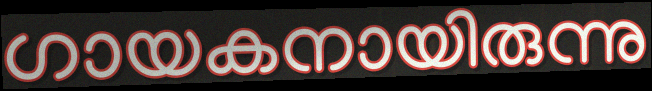
ഗായകനായിരുന്നു